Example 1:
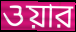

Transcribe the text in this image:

ওয়ার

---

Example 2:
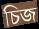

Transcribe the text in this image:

চিজ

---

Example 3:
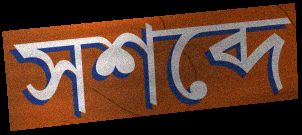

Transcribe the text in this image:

সশব্দে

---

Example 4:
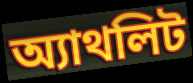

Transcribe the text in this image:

অ্যাথলিট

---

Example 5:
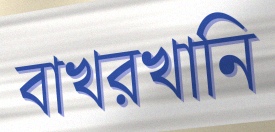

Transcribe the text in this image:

বাখরখানি